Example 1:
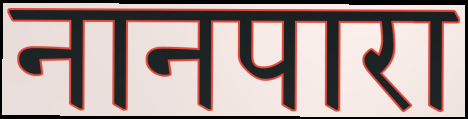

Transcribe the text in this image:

नानपारा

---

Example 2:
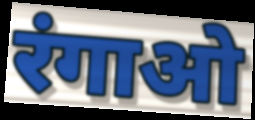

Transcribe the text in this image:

रंगाओ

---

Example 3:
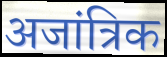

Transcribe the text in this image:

अजांत्रिक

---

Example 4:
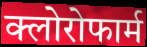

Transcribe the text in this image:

क्लोरोफार्म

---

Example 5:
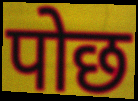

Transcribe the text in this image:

पोछ